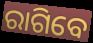
ରାଗିବେ